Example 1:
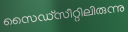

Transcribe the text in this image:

സൈഡ്സീറ്റിലിരുന്നു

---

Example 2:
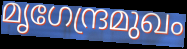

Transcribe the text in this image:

മൃഗേന്ദ്രമുഖം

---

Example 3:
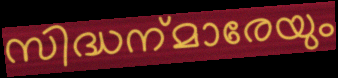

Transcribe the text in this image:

സിദ്ധന്‌മാരേയും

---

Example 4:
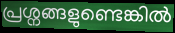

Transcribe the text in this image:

പ്രശ്നങ്ങളുണ്ടെങ്കിൽ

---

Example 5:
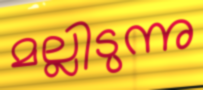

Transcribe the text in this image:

മല്ലിടുന്നു